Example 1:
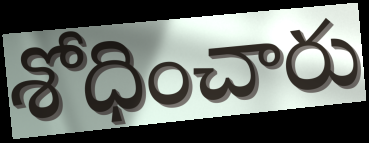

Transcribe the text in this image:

శోధించారు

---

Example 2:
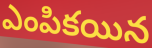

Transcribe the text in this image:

ఎంపికయిన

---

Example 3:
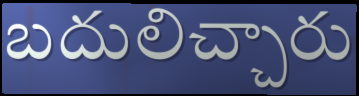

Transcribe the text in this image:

బదులిచ్చారు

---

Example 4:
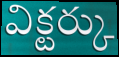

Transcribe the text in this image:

విక్టర్కు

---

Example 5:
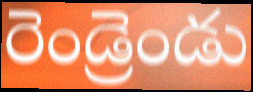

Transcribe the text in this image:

రెండ్రెండు